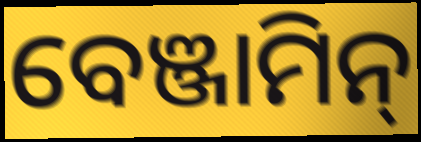
ବେଞ୍ଜାମିନ୍